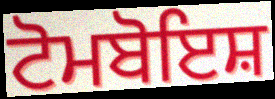
ਟੋਮਬੋਇਸ਼